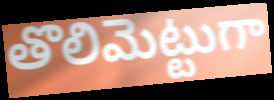
తొలిమెట్టుగా